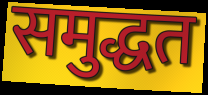
समुद्धत